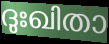
ദുഃഖിതാ